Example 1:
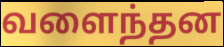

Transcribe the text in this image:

வளைந்தன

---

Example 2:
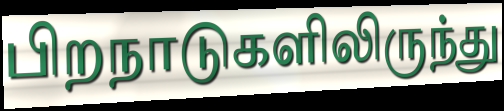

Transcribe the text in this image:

பிறநாடுகளிலிருந்து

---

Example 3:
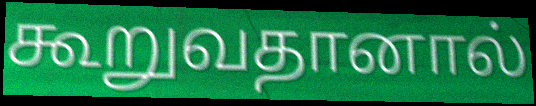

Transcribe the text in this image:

கூறுவதானால்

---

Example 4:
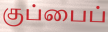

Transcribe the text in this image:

குப்பைப்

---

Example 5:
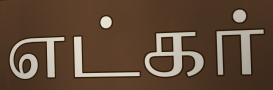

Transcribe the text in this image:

எட்கர்